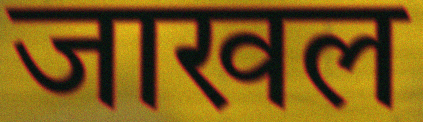
जाखल